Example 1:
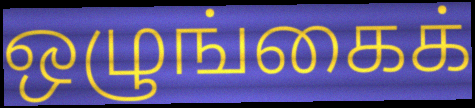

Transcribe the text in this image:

ஒழுங்கைக்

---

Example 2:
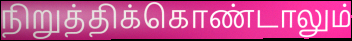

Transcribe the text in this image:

நிறுத்திக்கொண்டாலும்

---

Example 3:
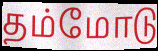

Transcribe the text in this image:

தம்மோடு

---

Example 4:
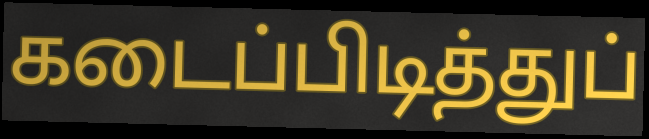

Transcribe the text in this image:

கடைப்பிடித்துப்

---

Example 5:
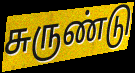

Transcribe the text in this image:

சுருண்டு